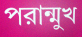
পরান্মুখ